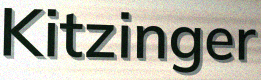
Kitzinger